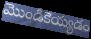
మొండికెయ్యడం